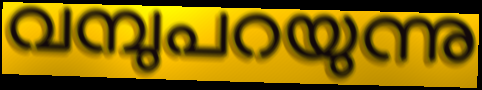
വമ്പുപറയുന്നു